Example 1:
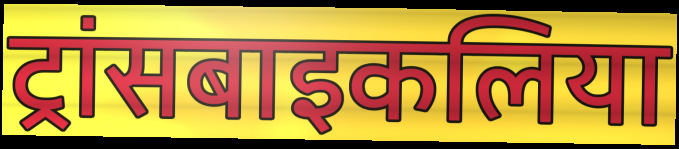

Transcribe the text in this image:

ट्रांसबाइकलिया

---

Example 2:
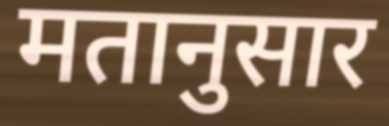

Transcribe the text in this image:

मतानुसार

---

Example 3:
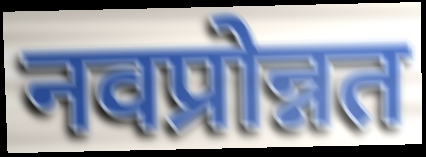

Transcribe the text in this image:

नवप्रोन्नत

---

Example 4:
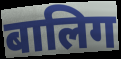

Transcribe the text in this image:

बालिग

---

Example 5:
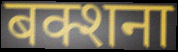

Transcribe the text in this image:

बक्शना